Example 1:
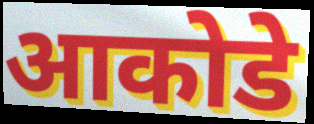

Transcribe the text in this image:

आकोडे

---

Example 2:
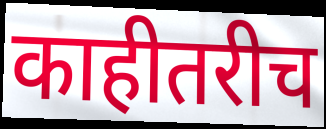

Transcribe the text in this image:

काहीतरीच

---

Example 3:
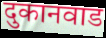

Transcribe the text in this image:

दुकानवाड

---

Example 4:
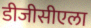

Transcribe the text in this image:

डीजीसीएला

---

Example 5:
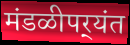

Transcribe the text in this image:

मंडळीपर्यंत